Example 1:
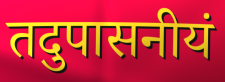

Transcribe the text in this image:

तदुपासनीयं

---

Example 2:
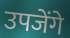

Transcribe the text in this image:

उपजेंगे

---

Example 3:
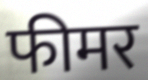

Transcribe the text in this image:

फीमर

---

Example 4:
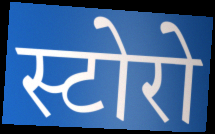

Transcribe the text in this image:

स्टोरो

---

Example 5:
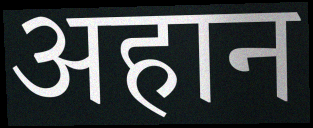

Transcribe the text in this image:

अहान